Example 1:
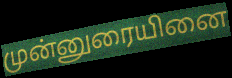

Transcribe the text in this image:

முன்னுரையினை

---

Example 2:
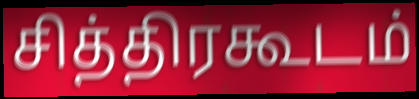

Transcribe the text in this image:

சித்திரகூடம்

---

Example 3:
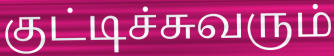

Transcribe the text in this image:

குட்டிச்சுவரும்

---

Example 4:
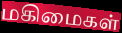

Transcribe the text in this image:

மகிமைகள்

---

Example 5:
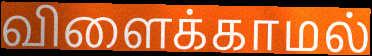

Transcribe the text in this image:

விளைக்காமல்